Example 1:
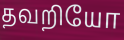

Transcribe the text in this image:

தவறியோ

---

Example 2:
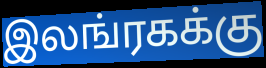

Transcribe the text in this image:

இலங்ரகக்கு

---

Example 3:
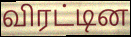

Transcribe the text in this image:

விரட்டின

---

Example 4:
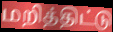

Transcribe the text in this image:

மறித்திட்டு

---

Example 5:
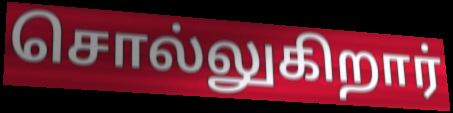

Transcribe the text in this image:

சொல்லுகிறார்